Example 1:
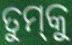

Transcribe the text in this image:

ତୁମ୍‌କୁ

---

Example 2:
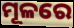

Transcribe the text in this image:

ମୂଳରେ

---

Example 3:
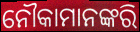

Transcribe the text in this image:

ନୌକାମାନଙ୍କରି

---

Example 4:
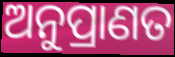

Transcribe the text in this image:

ଅନୁପ୍ରାଣତ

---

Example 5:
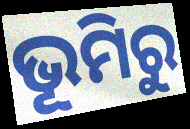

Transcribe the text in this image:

ଭୂମିରୁ